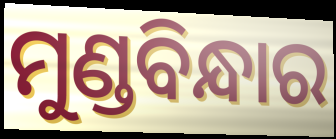
ମୁଣ୍ଡବିନ୍ଧାର